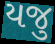
યજુ